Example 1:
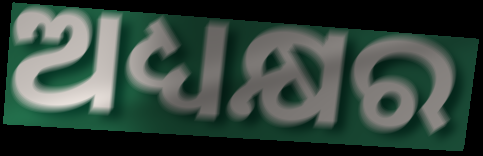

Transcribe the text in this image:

ଅଧ୍ୟକ୍ଷର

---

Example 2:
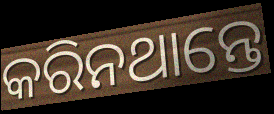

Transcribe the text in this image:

କରିନଥାନ୍ତେ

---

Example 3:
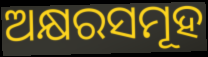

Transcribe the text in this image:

ଅକ୍ଷରସମୂହ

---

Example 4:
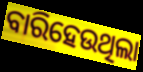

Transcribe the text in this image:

ବାରିହେଉଥିଲା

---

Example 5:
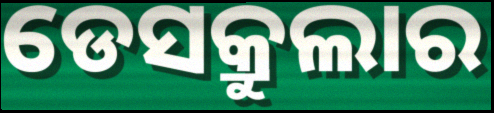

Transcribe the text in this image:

ଡେସକ୍ରୁଲାର